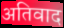
अतिवाद